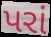
પરાં